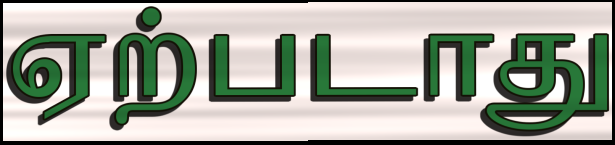
ஏற்படாது